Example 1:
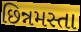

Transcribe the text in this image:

છિન્નમસ્તા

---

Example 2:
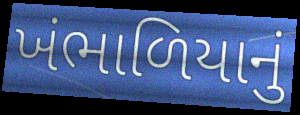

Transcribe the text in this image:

ખંભાળિયાનું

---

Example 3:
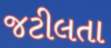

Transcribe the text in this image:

જટીલતા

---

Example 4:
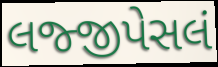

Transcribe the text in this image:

લજ્જીપેસલં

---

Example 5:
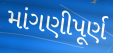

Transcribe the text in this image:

માંગણીપૂર્ણ